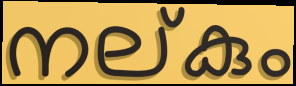
നല്കും